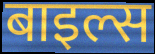
बाइल्स